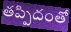
తప్పిదంతో